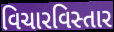
વિચારવિસ્તાર